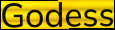
Godess